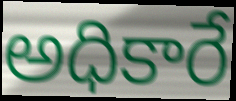
అధికారే